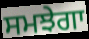
ਸਮਝੇਗਾ